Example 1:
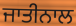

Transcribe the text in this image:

ਜਾਤੀਨਾਲ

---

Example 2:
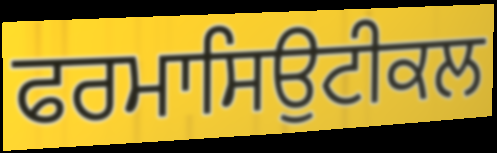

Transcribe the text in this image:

ਫਰਮਾਸਿਉਟੀਕਲ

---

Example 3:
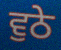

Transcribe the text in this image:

ਵੁਠੇ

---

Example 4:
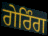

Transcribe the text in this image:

ਗੇਰਿੰਗ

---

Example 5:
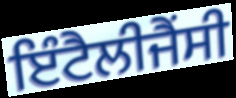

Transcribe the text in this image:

ਇੰਟੈਲੀਜੈਂਸੀ